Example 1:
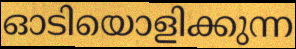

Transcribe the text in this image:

ഓടിയൊളിക്കുന്ന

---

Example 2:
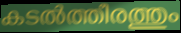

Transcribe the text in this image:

കടൽത്തീരത്തും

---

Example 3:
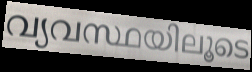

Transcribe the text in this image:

വ്യവസ്ഥയിലൂടെ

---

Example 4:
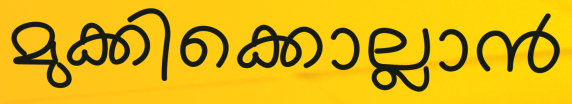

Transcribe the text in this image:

മുക്കിക്കൊല്ലാൻ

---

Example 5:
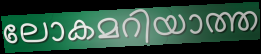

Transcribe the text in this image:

ലോകമറിയാത്ത